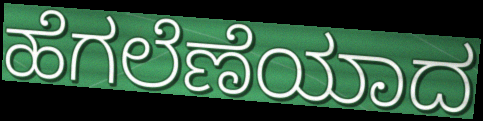
ಹೆಗಲೆಣೆಯಾದ